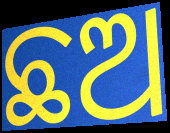
ଛଅ